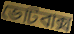
ভোটবাক্স